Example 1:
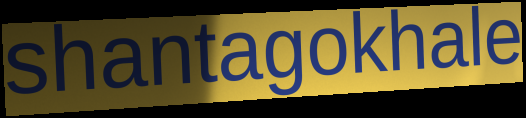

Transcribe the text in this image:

shantagokhale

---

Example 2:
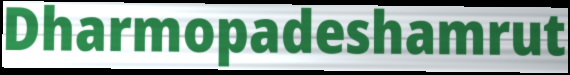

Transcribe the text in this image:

Dharmopadeshamrut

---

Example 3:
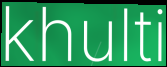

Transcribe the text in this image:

khulti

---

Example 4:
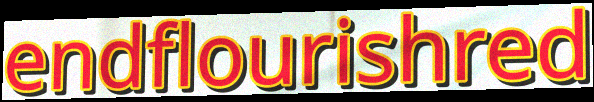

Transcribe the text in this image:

endflourishred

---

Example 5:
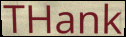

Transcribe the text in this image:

THank